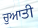
ਚੁਆਤੀ